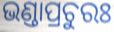
ଭଣ୍ଡାପ୍ରଚୁରଃ